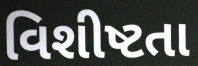
વિશીષ્ટતા